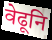
वेढूनि